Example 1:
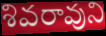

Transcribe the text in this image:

శివరావుని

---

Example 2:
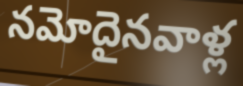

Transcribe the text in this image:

నమోదైనవాళ్ల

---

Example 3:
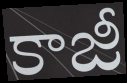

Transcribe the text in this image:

కాజీ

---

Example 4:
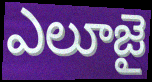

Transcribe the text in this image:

ఎలూజై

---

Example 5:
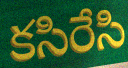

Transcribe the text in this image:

కసిరేసి